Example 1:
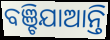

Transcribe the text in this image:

ବଞ୍ଚିଯାଆନ୍ତି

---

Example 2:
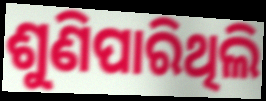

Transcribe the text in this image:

ଶୁଣିପାରିଥିଲି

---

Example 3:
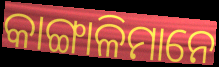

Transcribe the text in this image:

କାଙ୍ଗାଳିମାନେ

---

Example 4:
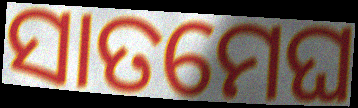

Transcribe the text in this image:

ସାତମେଘ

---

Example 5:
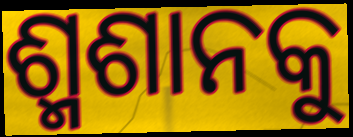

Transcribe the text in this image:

ଶ୍ମଶାନକୁ